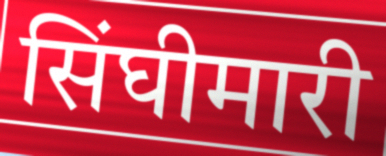
सिंघीमारी